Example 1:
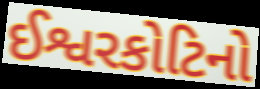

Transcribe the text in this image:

ઈશ્વરકોટિનો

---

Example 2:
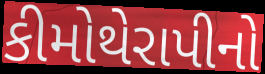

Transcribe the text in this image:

કીમોથેરાપીનો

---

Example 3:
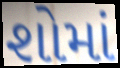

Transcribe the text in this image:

શોમાં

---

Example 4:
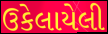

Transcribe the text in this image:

ઉકેલાયેલી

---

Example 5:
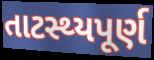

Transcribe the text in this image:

તાટસ્થ્યપૂર્ણ